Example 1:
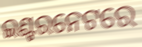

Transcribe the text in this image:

ଇଣ୍ଟରନେଟରେ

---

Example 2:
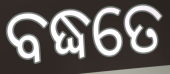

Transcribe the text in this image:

ବଦ୍ଧତେ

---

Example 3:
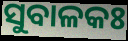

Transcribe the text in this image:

ସୁବାଳକଃ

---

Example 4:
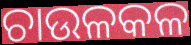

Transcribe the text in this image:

ଚାଉଳକଳ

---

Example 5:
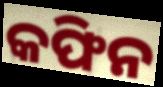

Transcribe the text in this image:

କଫିନ